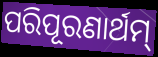
ପରିପୂରଣାର୍ଥମ୍